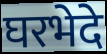
घरभेदे